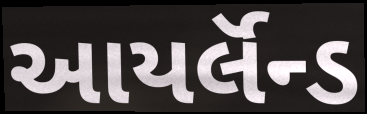
આયર્લૅન્ડ